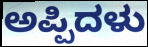
ಅಪ್ಪಿದಳು